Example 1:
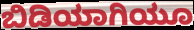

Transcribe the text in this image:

ಬಿಡಿಯಾಗಿಯೂ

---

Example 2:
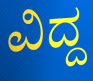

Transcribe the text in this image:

ವಿದ್ದ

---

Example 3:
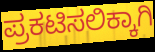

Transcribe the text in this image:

ಪ್ರಕಟಿಸಲಿಕ್ಕಾಗಿ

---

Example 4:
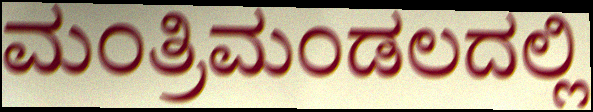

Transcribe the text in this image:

ಮಂತ್ರಿಮಂಡಲದಲ್ಲಿ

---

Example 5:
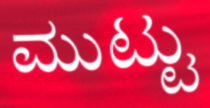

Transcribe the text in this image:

ಮುಟ್ಟು